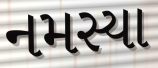
નમસ્યા